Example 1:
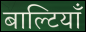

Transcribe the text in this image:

बाल्टियाँ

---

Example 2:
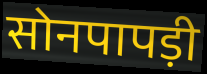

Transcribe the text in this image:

सोनपापड़ी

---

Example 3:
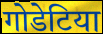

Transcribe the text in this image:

गोडेटिया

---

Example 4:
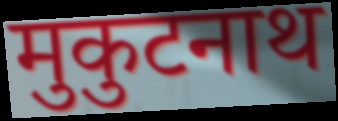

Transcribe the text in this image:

मुकुटनाथ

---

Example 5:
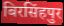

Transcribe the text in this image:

बिरसिंहपुर